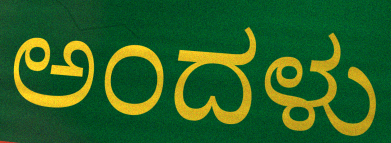
ಅಂದಳು